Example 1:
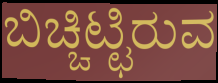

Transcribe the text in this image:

ಬಿಚ್ಚಿಟ್ಟಿರುವ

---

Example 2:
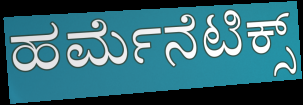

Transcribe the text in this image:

ಹರ್ಮೆನೆಟಿಕ್ಸ್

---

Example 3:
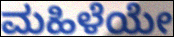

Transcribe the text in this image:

ಮಹಿಳೆಯೇ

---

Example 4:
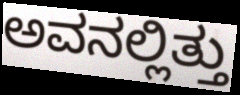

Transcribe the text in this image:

ಅವನಲ್ಲಿತ್ತು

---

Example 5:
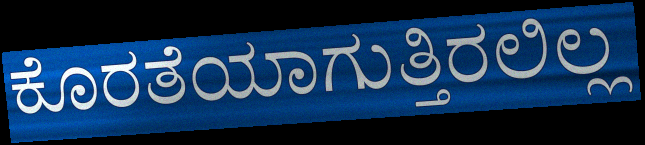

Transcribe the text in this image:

ಕೊರತೆಯಾಗುತ್ತಿರಲಿಲ್ಲ